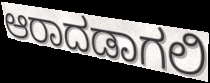
ಆರಾದಡಾಗಲಿ